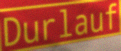
Durlauf